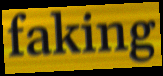
faking